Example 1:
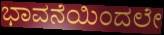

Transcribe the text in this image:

ಭಾವನೆಯಿಂದಲೇ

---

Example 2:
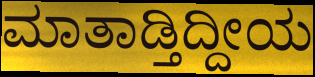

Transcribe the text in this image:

ಮಾತಾಡ್ತಿದ್ದೀಯ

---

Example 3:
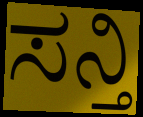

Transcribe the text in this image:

ಸನ್ತಿ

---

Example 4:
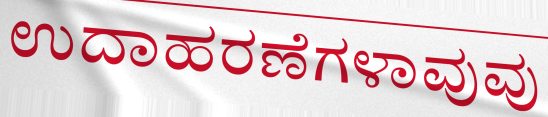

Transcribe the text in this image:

ಉದಾಹರಣೆಗಳಾವುವು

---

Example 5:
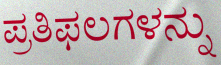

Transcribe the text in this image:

ಪ್ರತಿಫಲಗಳನ್ನು